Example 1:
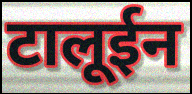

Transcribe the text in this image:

टालूईन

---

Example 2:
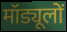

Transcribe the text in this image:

मॉड्यूलों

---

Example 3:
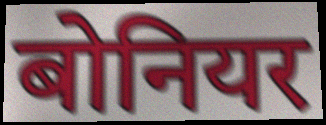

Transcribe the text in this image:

बोनियर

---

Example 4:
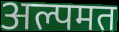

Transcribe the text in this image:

अल्पमत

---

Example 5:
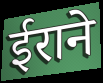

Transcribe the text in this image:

ईराने